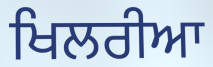
ਖਿਲਰੀਆ